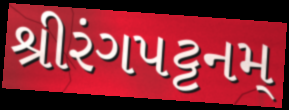
શ્રીરંગપટ્ટનમ્